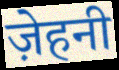
ज़ेहनी